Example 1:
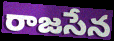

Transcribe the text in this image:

రాజసేన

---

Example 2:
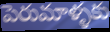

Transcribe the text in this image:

పెరుమాళ్ళకు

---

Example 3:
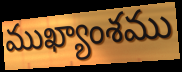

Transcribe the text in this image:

ముఖ్యాంశము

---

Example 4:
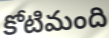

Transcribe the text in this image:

కోటిమంది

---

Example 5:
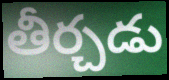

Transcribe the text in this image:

తీర్చడు